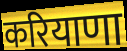
करियाणा